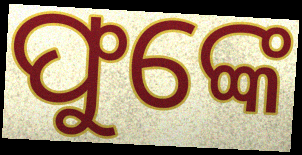
ଫୁଙ୍କେ